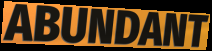
ABUNDANT